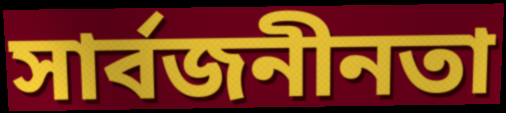
সাৰ্বজনীনতা